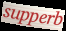
supperb